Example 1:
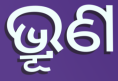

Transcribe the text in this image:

ଭ୍ରୂଣ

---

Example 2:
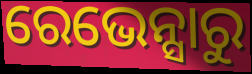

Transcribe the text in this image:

ରେଭେନ୍ସାରୁ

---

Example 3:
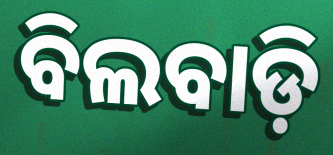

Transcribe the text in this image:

ବିଲବାଡ଼ି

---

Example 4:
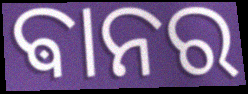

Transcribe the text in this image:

ଵାନର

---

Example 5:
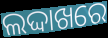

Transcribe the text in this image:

ଲଦ୍ଦାଖରେ